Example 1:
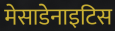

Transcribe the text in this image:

मेसाडेनाइटिस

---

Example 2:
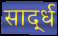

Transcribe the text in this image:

सार्द्ध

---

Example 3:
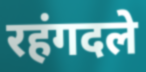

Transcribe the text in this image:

रहंगदले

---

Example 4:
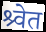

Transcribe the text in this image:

श्र्वेत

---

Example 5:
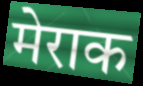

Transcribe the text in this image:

मेराक